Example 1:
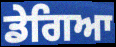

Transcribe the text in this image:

ਡੇਗਿਆ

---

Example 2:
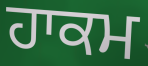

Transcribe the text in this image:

ਹਾਕਮ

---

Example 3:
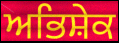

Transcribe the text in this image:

ਅਭਿਸ਼ੇਕ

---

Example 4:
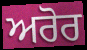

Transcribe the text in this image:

ਅਰੋਰ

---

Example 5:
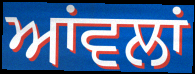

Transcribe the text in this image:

ਆਂਵਲਾਂ